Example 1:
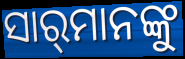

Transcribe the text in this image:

ସାର୍‌ମାନଙ୍କୁ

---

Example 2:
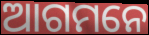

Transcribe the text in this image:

ଆଗମନେ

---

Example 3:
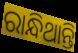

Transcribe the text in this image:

ରାନ୍ଧିଥାନ୍ତି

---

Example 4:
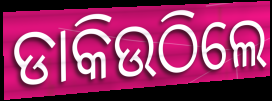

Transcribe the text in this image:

ଡାକିଉଠିଲେ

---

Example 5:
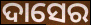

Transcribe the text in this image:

ଦାସେର